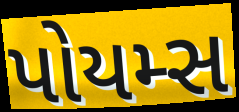
પોયમ્સ